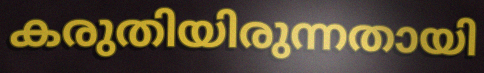
കരുതിയിരുന്നതായി